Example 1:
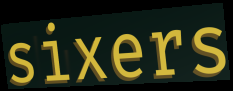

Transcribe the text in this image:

sixers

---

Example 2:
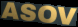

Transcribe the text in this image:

ASOV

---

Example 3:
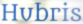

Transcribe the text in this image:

Hubris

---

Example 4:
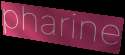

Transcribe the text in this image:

pharine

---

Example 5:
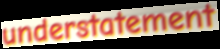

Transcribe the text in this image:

understatement